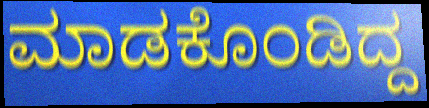
ಮಾಡಕೊಂಡಿದ್ದ